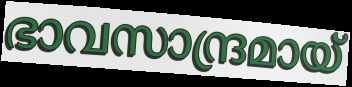
ഭാവസാന്ദ്രമായ്